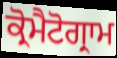
ਕ੍ਰੋਮੈਟੋਗ੍ਰਾਮ